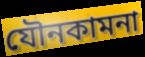
যৌনকামনা